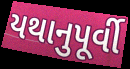
યથાનુપૂર્વી